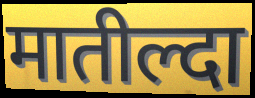
मातील्‍दा